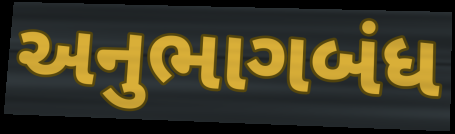
અનુભાગબંધ